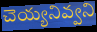
చెయ్యనివ్వని